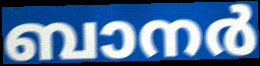
ബാനർ